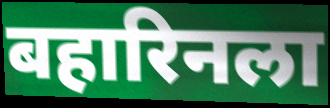
बहारिनला